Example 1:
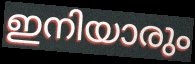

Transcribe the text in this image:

ഇനിയാരും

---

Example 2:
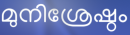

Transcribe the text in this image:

മുനിശ്രേഷ്ഠം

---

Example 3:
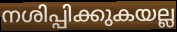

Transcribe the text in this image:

നശിപ്പിക്കുകയല്ല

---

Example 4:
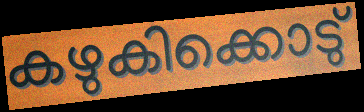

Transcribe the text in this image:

കഴുകിക്കൊടു്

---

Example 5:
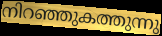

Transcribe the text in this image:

നിറഞ്ഞുകത്തുന്നു